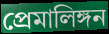
প্রেমালিঙ্গন